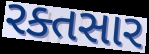
રક્તસાર